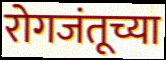
रोगजंतूच्या